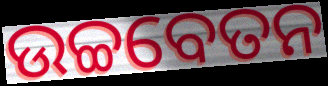
ଉଚ୍ଚବେତନ